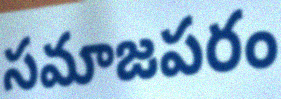
సమాజపరం